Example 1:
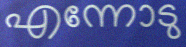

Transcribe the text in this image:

എന്നോടു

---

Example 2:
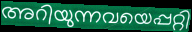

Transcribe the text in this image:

അറിയുന്നവയെപ്പറ്റി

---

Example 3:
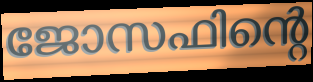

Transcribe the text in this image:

ജോസഫിന്റെ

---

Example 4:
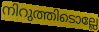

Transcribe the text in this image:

നിറുത്തിടൊല്ലേ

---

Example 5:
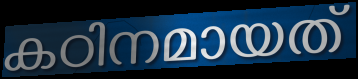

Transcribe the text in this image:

കഠിനമായത്